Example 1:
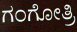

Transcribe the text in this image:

ಗಂಗೋತ್ರಿ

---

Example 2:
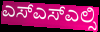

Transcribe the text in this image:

ಎಸ್ಎಸ್ಎಲ್ಸಿ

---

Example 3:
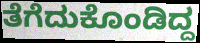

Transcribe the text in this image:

ತೆಗೆದುಕೊಂಡಿದ್ದ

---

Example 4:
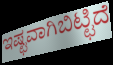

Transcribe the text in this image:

ಇಷ್ಟವಾಗಿಬಿಟ್ಟಿದೆ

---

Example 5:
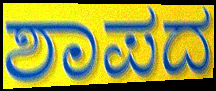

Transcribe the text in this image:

ಶಾಪದ